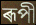
ৰূপী